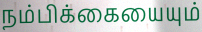
நம்பிக்கையையும்